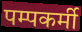
पम्पकर्मी